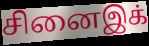
சினைஇக்